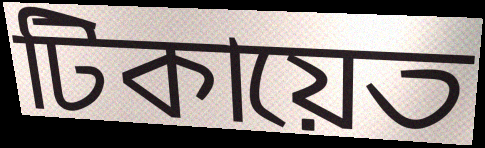
টিকায়েত